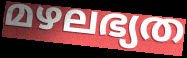
മഴലഭ്യത